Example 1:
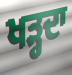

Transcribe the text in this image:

ਖੜ੍ਹਦਾ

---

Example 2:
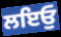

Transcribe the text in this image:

ਲਇਓੁ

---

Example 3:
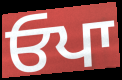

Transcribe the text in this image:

ਓਪਾ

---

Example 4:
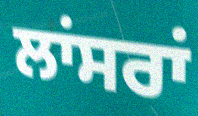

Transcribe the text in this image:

ਲਾਂਸਰਾਂ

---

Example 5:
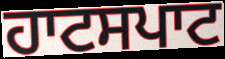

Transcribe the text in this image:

ਹਾਟਸਪਾਟ